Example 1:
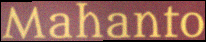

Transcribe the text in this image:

Mahanto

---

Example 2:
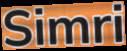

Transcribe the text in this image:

Simri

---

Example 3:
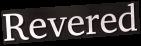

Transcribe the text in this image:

Revered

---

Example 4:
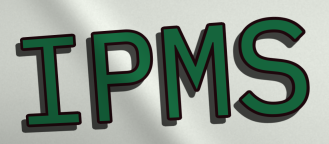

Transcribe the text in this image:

IPMS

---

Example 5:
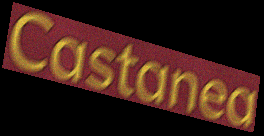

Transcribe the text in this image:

Castanea